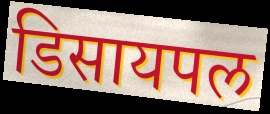
डिसायपल